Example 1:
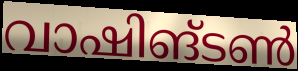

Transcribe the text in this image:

വാഷിങ്ടൺ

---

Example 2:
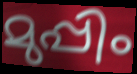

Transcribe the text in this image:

മുപ്പിം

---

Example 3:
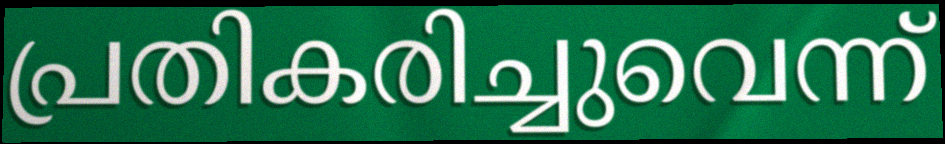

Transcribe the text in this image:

പ്രതികരിച്ചുവെന്ന്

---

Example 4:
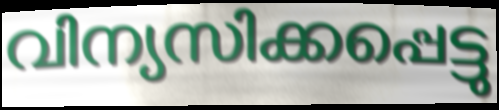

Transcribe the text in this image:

വിന്യസിക്കപ്പെട്ടു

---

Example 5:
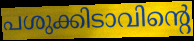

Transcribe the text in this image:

പശുക്കിടാവിന്റെ